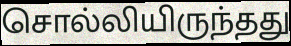
சொல்லியிருந்தது